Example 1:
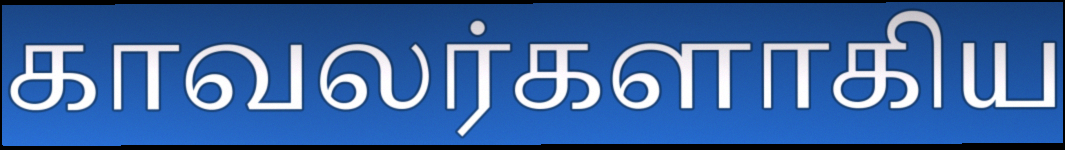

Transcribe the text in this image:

காவலர்களாகிய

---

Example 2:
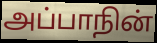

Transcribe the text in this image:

அப்பாநின்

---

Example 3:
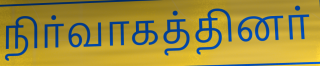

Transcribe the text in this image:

நிர்வாகத்தினர்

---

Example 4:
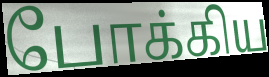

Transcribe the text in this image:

போக்கிய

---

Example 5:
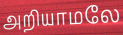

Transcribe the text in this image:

அறியாமலே